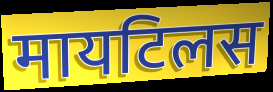
मायटिलस